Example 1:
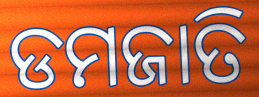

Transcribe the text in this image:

ଡମଜାତି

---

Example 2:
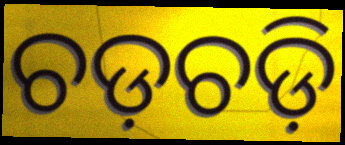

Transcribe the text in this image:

ଚଡ଼ଚଡ଼ି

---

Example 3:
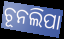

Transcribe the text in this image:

ଚୂନଲିପା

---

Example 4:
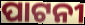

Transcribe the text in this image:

ପାଟନୀ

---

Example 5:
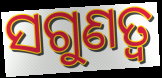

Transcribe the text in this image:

ସଗୁଣତ୍ଵ